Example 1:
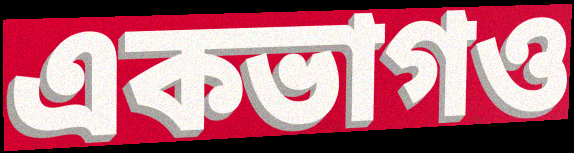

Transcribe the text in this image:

একভাগও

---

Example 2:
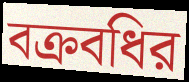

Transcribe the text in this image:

বক্রবধির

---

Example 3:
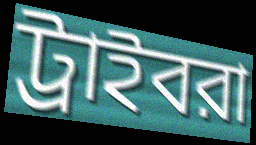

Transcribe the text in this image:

ট্রাইবরা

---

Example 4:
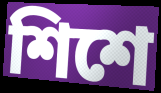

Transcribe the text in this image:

শিশে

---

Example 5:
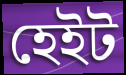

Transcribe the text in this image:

হেইট